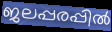
ജലപ്പരപ്പിൽ